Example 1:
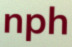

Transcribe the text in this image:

nph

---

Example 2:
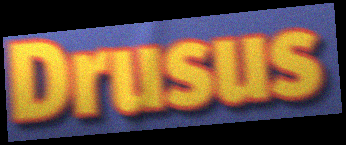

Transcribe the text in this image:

Drusus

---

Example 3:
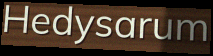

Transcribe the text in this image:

Hedysarum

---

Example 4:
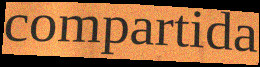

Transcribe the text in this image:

compartida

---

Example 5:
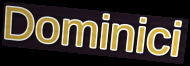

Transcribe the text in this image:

Dominici